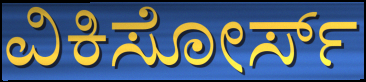
ವಿಕಿಸೋರ್ಸ್